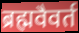
ब्रह्मवैवर्त